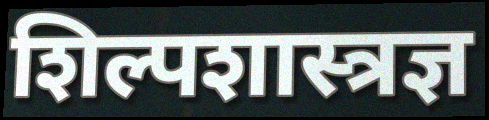
शिल्पशास्त्रज्ञ